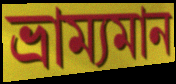
ভ্রাম্যমান